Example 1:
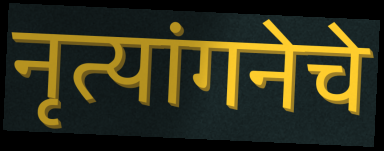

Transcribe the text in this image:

नृत्यांगनेचे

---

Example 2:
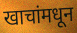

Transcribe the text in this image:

खाचांमधून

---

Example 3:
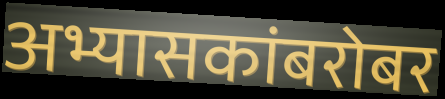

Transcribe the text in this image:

अभ्यासकांबरोबर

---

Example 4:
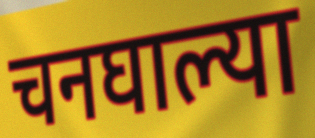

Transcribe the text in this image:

चनघाल्या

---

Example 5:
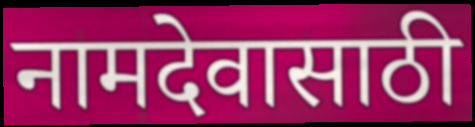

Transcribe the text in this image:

नामदेवासाठी